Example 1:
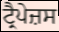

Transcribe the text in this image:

ਟ੍ਰੈਪੇਜ਼ਸ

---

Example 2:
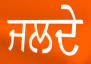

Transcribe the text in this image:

ਜਲਦੇ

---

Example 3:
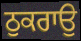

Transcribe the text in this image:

ਠੁਕਰਾਉ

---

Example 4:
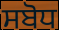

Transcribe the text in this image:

ਸਬੋਧ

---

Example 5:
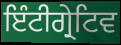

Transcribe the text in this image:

ਇੰਟੀਗ੍ਰੇਟਿਵ